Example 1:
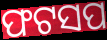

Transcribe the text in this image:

ଫଟସପ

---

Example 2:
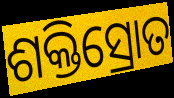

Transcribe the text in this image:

ଶକ୍ତିସ୍ରୋତ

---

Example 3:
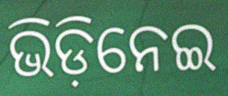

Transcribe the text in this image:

ଭିଡ଼ିନେଇ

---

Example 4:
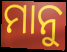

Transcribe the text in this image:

ମାନୁ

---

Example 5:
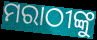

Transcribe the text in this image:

ମରାଠୀଙ୍କୁ